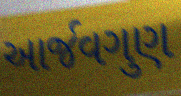
આર્જવગુણ